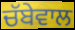
ਚੱਬੇਵਾਲ